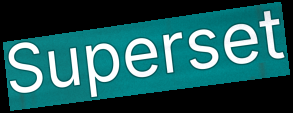
Superset